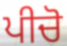
ਪੀਚੋ